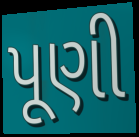
પૂણી